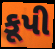
કૂપી